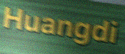
Huangdi